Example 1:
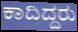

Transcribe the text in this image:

ಕಾದಿದ್ದರು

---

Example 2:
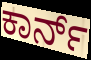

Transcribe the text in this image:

ಕಾರ್ನ್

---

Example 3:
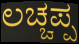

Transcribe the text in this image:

ಲಚ್ಚಪ್ಪ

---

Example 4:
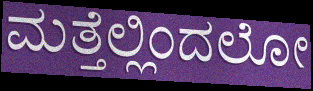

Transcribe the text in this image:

ಮತ್ತೆಲ್ಲಿಂದಲೋ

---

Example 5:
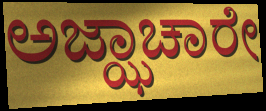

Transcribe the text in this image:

ಅಜ್ಝಾಚಾರೇ